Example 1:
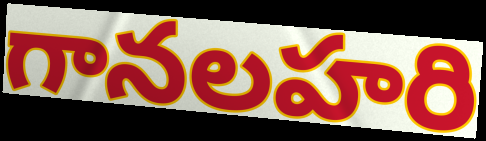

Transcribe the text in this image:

గానలహరి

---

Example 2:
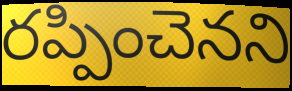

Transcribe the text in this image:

రప్పించెనని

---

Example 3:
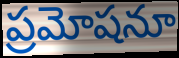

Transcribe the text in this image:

ప్రమోషనూ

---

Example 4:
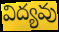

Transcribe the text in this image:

విద్యవు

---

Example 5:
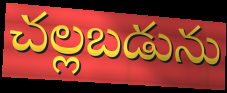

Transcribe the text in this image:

చల్లబడును